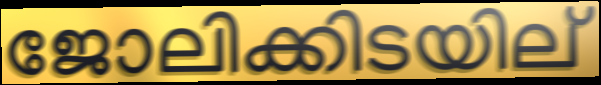
ജോലിക്കിടയില്